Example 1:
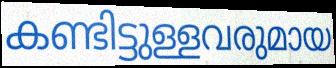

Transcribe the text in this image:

കണ്ടിട്ടുള്ളവരുമായ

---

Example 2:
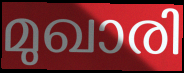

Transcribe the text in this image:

മുഖാരി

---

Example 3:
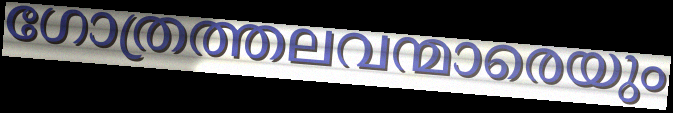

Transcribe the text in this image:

ഗോത്രത്തലവന്മാരെയും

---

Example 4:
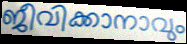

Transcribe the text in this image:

ജീവിക്കാനാവും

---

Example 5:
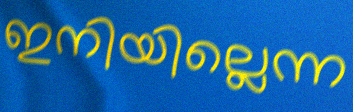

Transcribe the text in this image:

ഇനിയില്ലെന്ന